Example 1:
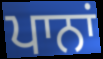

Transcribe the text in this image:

ਪਾਨਾਂ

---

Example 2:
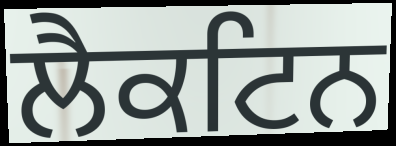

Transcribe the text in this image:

ਲੈਕਟਿਨ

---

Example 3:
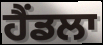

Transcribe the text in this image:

ਹੈਂਡਲਾ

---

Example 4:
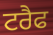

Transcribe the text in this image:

ਟਰੈਫ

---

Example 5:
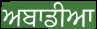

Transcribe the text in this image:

ਅਬਾਡੀਆ